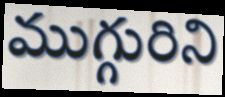
ముగ్గురిని